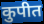
कुपीत